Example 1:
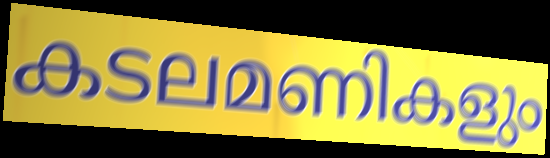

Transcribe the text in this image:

കടലമണികളും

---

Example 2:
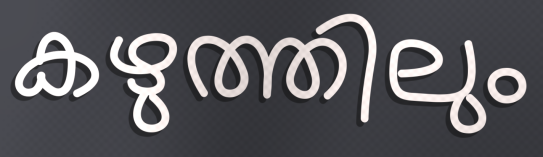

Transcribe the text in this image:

കഴുത്തിലും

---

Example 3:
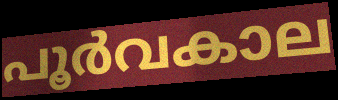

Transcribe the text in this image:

പൂർവകാല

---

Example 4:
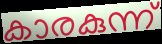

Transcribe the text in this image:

കാരകുന്ന്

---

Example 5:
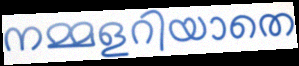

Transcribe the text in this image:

നമ്മളറിയാതെ